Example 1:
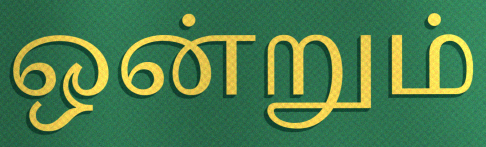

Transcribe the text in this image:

ஒன்றும்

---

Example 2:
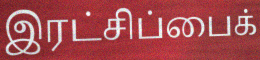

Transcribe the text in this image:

இரட்சிப்பைக்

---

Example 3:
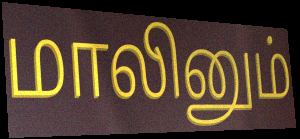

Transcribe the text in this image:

மாலினும்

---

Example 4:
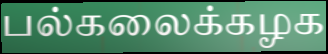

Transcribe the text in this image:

பல்கலைக்கழக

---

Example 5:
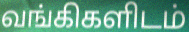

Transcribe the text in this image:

வங்கிகளிடம்